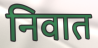
निवात